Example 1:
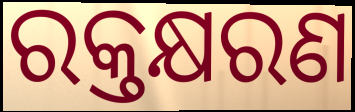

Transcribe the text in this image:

ରକ୍ତକ୍ଷରଣ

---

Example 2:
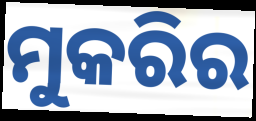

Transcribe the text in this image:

ମୁକରିର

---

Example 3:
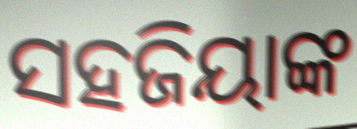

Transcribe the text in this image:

ସହଜିୟାଙ୍କ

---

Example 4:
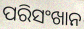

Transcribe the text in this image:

ପରିସଂଖାନ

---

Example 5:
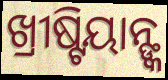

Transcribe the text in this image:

ଖ୍ରୀଷ୍ଟିୟାନ୍ଙ୍କ